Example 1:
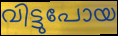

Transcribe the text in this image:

വിട്ടുപോയ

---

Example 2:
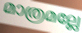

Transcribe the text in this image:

മാത്രമല്ലേ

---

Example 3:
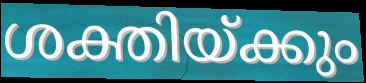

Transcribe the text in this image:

ശക്തിയ്ക്കും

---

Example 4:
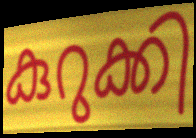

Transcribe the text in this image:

കുറുക്കി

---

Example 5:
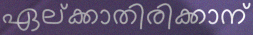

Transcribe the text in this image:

ഏല്ക്കാതിരിക്കാന്